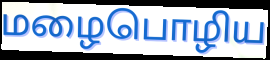
மழைபொழிய